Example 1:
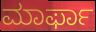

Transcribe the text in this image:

ಮಾರ್ಫಾ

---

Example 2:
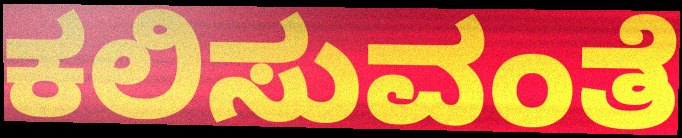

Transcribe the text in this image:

ಕಲಿಸುವಂತೆ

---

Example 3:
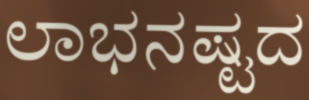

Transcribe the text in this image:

ಲಾಭನಷ್ಟದ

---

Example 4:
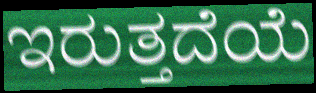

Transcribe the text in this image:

ಇರುತ್ತದೆಯೆ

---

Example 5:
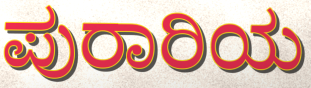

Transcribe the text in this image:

ಪುರಾರಿಯ